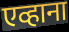
एव्हाना